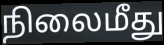
நிலைமீது